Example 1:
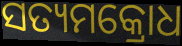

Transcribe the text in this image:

ସତ୍ୟମକ୍ରୋଧ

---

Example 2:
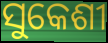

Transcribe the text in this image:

ସୁକେଶୀ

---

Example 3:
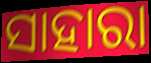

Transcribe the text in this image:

ସାହାରା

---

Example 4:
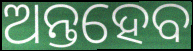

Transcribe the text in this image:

ଅନ୍ତହେବ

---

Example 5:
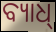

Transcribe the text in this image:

ବ୍ୟାଧ୍